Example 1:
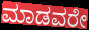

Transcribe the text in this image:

ಮಾಡವರೇ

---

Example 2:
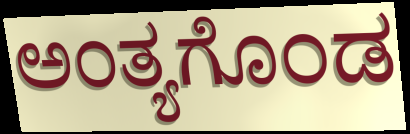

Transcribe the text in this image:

ಅಂತ್ಯಗೊಂಡ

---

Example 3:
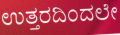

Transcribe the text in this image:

ಉತ್ತರದಿಂದಲೇ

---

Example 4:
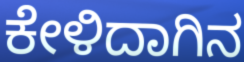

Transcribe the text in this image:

ಕೇಳಿದಾಗಿನ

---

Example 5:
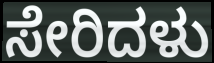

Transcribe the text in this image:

ಸೇರಿದಳು